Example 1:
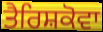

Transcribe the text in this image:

ਤੈਰਿਸ਼ਕੋਵਾ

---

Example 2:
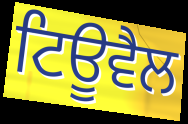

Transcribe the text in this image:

ਟਿਊਵੈਲ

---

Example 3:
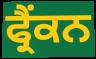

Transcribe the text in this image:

ਫ੍ਰੈਂਕਨ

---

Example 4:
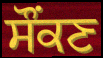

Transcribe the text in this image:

ਸੌਂਕਣ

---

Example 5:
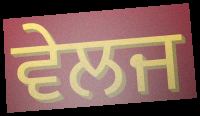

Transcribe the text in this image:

ਵੇਲਜ